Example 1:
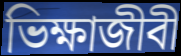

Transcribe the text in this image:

ভিক্ষাজীবী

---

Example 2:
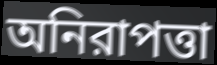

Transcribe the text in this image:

অনিরাপত্তা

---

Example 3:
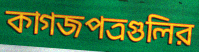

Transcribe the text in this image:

কাগজপত্রগুলির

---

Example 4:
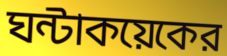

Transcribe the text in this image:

ঘন্টাকয়েকের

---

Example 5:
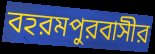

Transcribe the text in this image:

বহরমপুরবাসীর